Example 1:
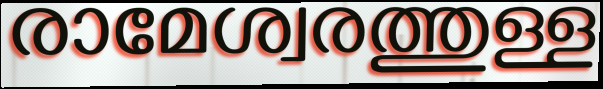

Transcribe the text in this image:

രാമേശ്വരത്തുള്ള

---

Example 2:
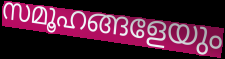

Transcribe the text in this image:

സമൂഹങ്ങളേയും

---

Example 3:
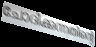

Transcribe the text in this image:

ചോദിക്കുന്നതിന്റെ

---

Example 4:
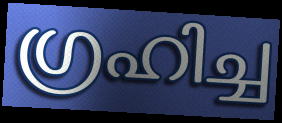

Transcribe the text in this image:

ഗ്രഹിച്ച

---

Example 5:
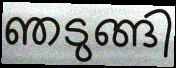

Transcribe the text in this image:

ഞടുങ്ങി